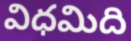
విధమిది